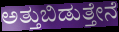
ಅತ್ತುಬಿಡುತ್ತೇನೆ